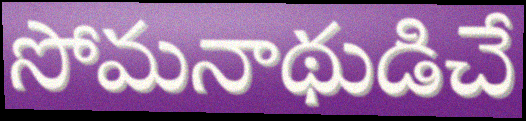
సోమనాథుడిచే